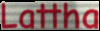
Lattha